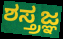
ಶಸ್ತ್ರಜ್ಞ